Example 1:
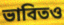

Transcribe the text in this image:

ভাবিতও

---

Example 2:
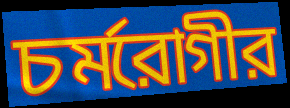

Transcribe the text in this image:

চর্মরোগীর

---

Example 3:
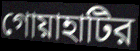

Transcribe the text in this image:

গোয়াহাটির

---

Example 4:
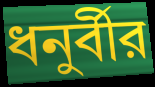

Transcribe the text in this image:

ধনুর্বীর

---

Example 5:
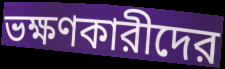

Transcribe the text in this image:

ভক্ষণকারীদের